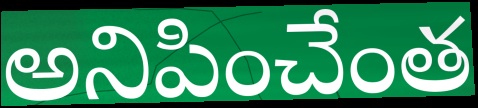
అనిపించేంత